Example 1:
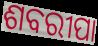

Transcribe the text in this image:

ଶବରୀପା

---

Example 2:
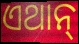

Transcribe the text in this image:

ଏଥାନ୍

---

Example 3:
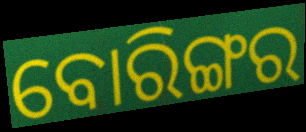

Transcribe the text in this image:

ବୋରିଙ୍ଗର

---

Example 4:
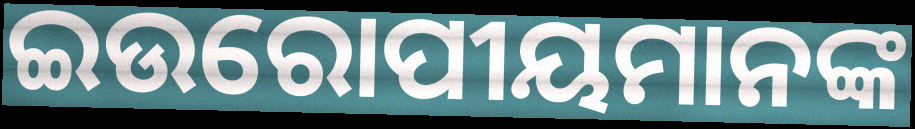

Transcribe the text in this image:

ଇଉରୋପୀୟମାନଙ୍କ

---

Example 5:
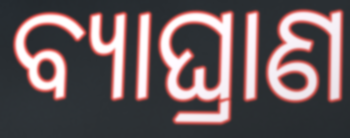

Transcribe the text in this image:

ବ୍ୟାଘ୍ରାଣ